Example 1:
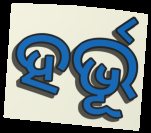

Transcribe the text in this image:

ହର୍ଭୂ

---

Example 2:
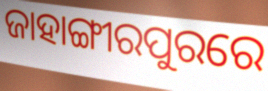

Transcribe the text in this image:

ଜାହାଙ୍ଗୀରପୁରରେ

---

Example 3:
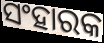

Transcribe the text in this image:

ସଂହାରକ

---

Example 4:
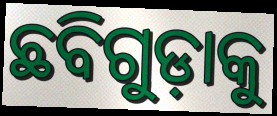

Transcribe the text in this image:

ଛବିଗୁଡ଼ାକୁ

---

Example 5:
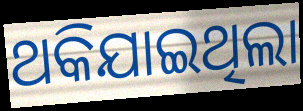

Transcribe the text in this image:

ଥକିଯାଇଥିଲା